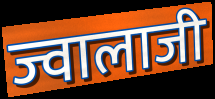
ज्वालाजी